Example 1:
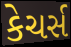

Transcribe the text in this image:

કેચર્સ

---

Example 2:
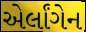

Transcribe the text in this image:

એર્લાંગેન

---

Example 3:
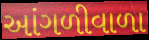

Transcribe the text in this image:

આંગળીવાળા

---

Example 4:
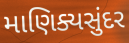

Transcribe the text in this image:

માણિક્યસુંદર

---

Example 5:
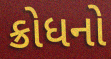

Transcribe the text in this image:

ક્રોધનો